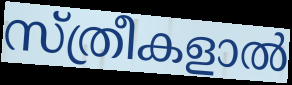
സ്ത്രീകളാൽ